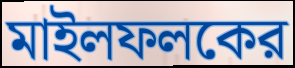
মাইলফলকের